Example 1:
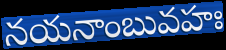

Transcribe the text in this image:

నయనాంబువహః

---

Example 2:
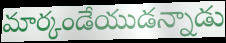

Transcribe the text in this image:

మార్కండేయుడన్నాడు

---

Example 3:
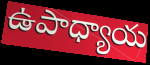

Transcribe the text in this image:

ఉపాధ్యాయ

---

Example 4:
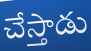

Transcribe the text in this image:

చేస్తాడు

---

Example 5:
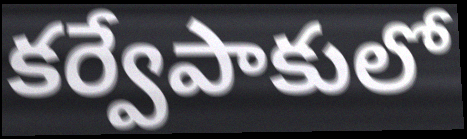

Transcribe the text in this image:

కర్వేపాకులో